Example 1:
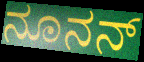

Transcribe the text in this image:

ನೂನನ್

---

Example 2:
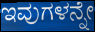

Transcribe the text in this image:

ಇವುಗಳನ್ನೇ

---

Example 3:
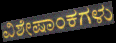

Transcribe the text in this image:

ವಿಶೇಷಾಂಕಗಳು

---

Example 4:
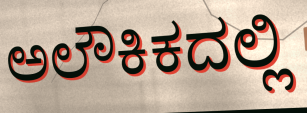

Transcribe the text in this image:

ಅಲೌಕಿಕದಲ್ಲಿ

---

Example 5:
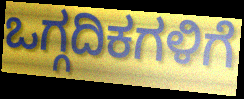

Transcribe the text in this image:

ಒಗ್ಗದಿಕಗಳಿಗೆ